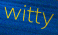
witty